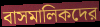
বাসমালিকদের